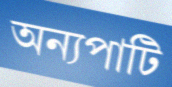
অন্যপাটি